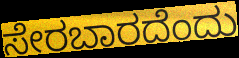
ಸೇರಬಾರದೆಂದು